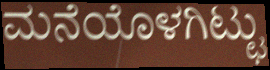
ಮನೆಯೊಳಗಿಟ್ಟು